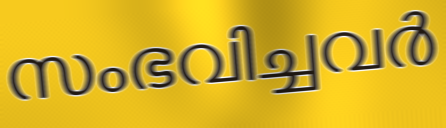
സംഭവിച്ചവർ